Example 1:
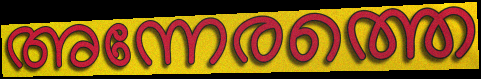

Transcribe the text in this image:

അന്നേരത്തെ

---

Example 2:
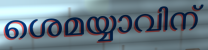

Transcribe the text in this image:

ശെമയ്യാവിന്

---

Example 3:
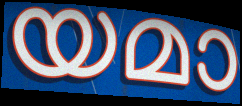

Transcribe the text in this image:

യമാ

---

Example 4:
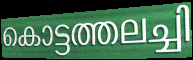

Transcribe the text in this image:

കൊട്ടത്തലച്ചി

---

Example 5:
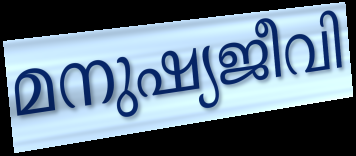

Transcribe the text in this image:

മനുഷ്യജീവി